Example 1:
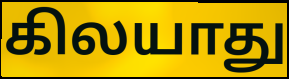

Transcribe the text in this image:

கிலயாது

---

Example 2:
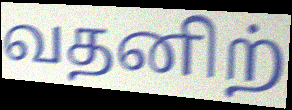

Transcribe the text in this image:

வதனிற்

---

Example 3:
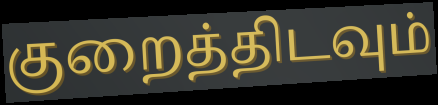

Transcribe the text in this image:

குறைத்திடவும்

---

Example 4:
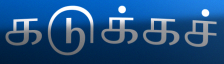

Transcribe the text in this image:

கடுக்கச்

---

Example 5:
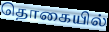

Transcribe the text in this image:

தொகையில்